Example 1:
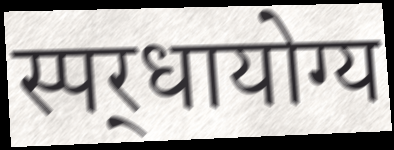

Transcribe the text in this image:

स्पर्धायोग्य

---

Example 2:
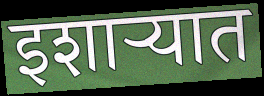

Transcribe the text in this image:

इशाऱ्यात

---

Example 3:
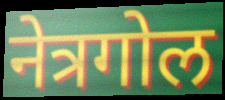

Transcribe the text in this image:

नेत्रगोल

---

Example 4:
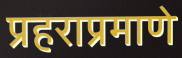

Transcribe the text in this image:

प्रहराप्रमाणे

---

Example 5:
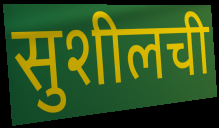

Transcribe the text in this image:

सुशीलची